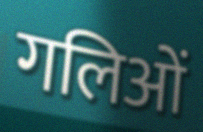
गलिओं